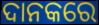
ଦାନକରେ